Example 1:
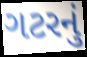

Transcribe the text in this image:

ગટરનું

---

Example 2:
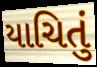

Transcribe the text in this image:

યાચિતું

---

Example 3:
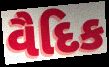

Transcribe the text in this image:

વૈદિક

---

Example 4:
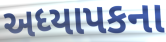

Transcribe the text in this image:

અધ્યાપકના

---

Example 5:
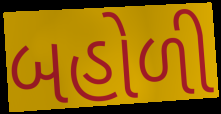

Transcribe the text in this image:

બહોળી